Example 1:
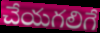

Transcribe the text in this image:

చేయగలిగే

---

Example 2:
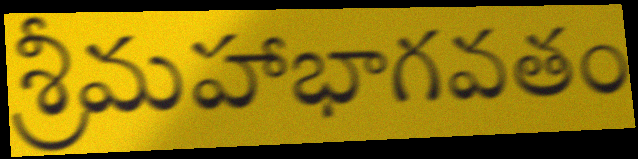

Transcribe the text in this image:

శ్రీమహాభాగవతం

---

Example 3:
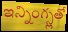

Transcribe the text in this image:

ఇన్నింగ్స్లతో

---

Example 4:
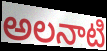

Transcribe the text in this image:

అలనాటి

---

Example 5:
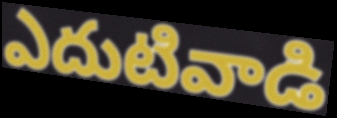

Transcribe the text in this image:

ఎదుటివాడి